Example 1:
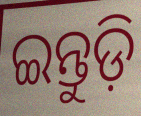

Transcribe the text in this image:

ଇନ୍ତୁଡ଼ି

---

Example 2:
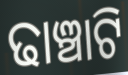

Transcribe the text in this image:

ଢାଞ୍ଚାଟି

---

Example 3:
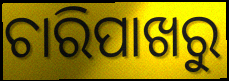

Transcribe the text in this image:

ଚାରିପାଖରୁ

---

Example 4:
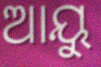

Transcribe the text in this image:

ଆୟୁ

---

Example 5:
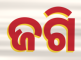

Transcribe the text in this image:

ଜଗି